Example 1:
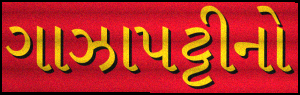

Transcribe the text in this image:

ગાઝાપટ્ટીનો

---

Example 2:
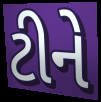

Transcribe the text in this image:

ટીને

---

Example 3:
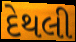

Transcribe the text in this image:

દેથલી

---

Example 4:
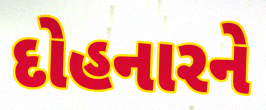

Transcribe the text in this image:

દોહનારને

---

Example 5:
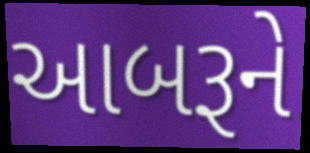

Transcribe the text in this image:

આબરૂને